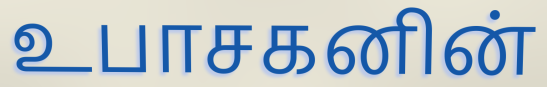
உபாசகனின்